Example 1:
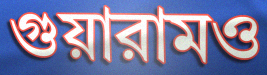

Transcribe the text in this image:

গুয়ারামও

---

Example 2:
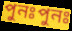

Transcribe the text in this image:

পুনঃপুনঃ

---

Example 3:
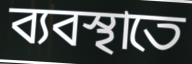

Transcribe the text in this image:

ব্যবস্থাতে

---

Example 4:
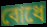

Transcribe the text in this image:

বোধে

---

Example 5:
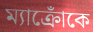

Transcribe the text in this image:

ম্যাক্রোঁকে